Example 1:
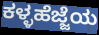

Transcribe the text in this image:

ಕಳ್ಳಹೆಜ್ಜೆಯ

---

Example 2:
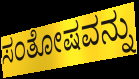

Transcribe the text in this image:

ಸಂತೋಷವನ್ನು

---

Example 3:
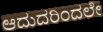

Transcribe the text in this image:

ಆದುದರಿಂದಲೇ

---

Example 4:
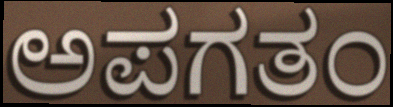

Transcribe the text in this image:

ಅಪಗತಂ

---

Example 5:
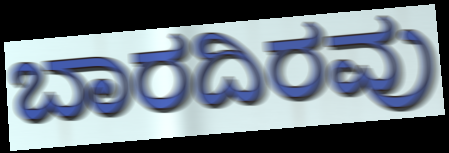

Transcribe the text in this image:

ಬಾರದಿರವು